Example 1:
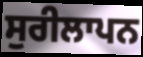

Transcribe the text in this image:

ਸੁਰੀਲਾਪਨ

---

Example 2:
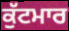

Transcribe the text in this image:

ਕੁੱਟਮਾਰ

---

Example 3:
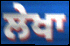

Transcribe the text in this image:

ਲੇਖਾ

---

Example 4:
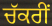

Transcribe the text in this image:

ਚੱਕਰੀਂ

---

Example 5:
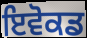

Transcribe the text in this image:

ਇਵੋਕਡ